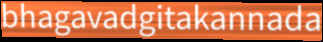
bhagavadgitakannada